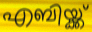
എബിയ്ക്ക്